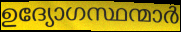
ഉദ്യോഗസ്ഥന്മാർ